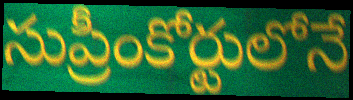
సుప్రీంకోర్టులోనే